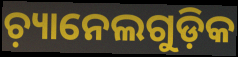
ଚ଼୍ୟାନେଲଗୁଡ଼ିକ